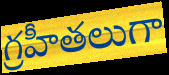
గ్రహీతలుగా